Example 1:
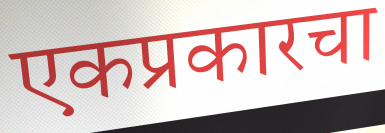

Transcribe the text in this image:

एकप्रकारचा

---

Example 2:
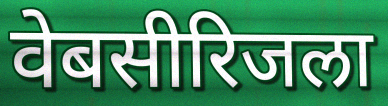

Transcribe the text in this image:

वेबसीरिजला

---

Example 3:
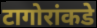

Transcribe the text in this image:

टागोरांकडे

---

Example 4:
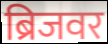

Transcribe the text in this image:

ब्रिजवर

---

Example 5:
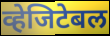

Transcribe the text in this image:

व्हेजिटेबल